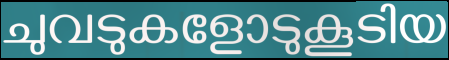
ചുവടുകളോടുകൂടിയ